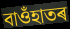
বাওঁহাতৰ